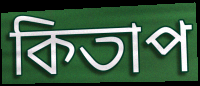
কিতাপ